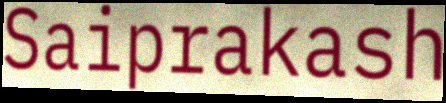
Saiprakash